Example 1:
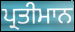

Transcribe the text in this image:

ਪ੍ਰਤੀਮਾਨ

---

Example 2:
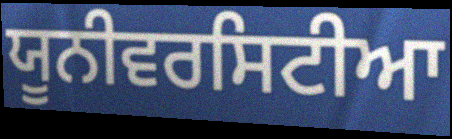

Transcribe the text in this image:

ਯੂਨੀਵਰਸਿਟੀਆ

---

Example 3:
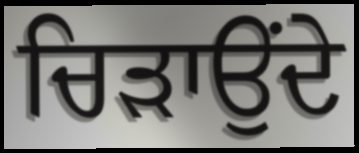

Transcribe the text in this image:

ਚਿੜਾਉਂਦੇ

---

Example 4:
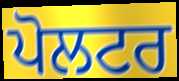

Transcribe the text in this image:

ਪੋਲਟਰ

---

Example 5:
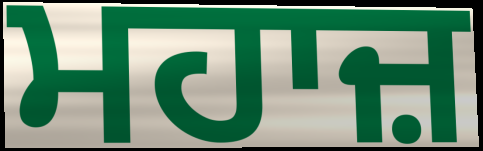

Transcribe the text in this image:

ਮਹਾਜ਼